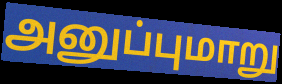
அனுப்புமாறு